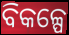
ବିକଳ୍ପେ